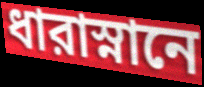
ধারাস্নানে